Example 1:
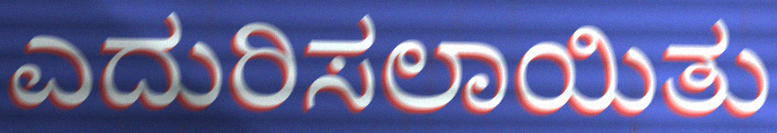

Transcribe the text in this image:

ಎದುರಿಸಲಾಯಿತು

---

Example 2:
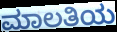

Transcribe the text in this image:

ಮಾಲತಿಯ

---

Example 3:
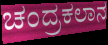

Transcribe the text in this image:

ಚಂದ್ರಕಲಾನ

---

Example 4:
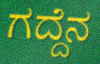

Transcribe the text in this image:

ಗದ್ದೆನ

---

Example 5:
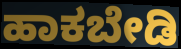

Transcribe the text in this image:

ಹಾಕಬೇಡಿ